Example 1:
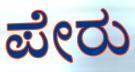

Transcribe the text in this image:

ಪೇರು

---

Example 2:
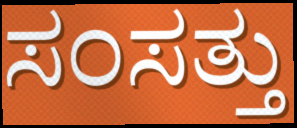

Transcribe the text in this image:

ಸಂಸತ್ತು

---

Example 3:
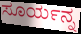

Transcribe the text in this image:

ಸೂರ್ಯನ್ನ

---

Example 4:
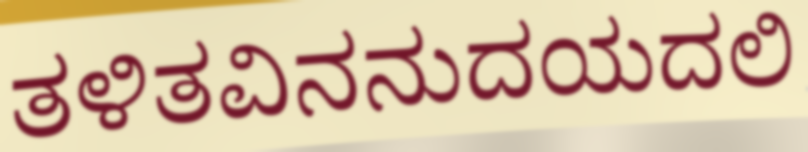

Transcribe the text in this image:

ತಳಿತವಿನನುದಯದಲಿ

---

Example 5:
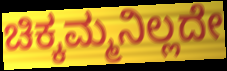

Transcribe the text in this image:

ಚಿಕ್ಕಮ್ಮನಿಲ್ಲದೇ